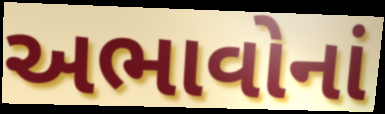
અભાવોનાં